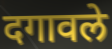
दगावले